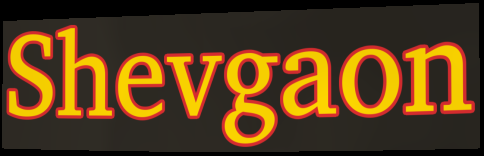
Shevgaon